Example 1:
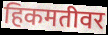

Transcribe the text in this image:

हिकमतीवर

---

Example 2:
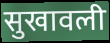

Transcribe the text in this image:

सुखावली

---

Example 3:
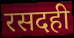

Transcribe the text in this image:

रसदही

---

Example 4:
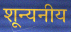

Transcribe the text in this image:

शून्यनीय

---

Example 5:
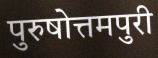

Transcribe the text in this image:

पुरुषोत्तमपुरी